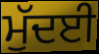
ਮੁੱਦਈ